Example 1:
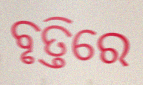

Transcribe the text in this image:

ବୃତ୍ତିରେ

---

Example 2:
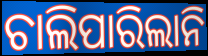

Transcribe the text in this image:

ଚାଲିପାରିଲାନି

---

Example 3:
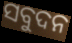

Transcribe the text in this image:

ସବୁଦନ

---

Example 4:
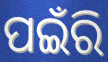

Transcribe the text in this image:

ପଇଁରି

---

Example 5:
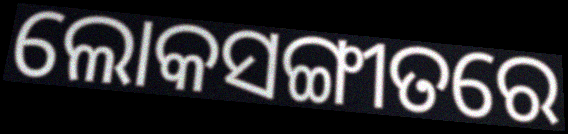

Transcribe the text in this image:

ଲୋକସଙ୍ଗୀତରେ